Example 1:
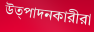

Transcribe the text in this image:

উত্পাদনকারীরা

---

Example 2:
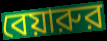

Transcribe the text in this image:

বেয়ারুর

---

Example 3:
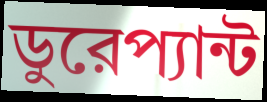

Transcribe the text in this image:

ডুরেপ্যান্ট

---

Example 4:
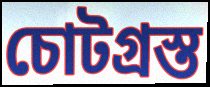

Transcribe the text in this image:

চোটগ্রস্ত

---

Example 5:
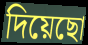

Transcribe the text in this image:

দিয়েছো